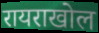
रायराखोल